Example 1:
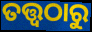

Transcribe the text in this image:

ତତ୍ତ୍ବଠାରୁ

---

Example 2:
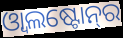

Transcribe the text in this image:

ଓ୍ୱାଲଷ୍ଟୋନ୍‌ର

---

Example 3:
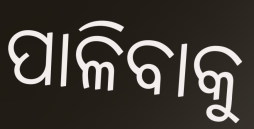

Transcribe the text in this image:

ପାଳିବାକୁ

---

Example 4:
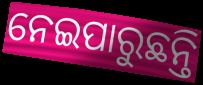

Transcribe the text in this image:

ନେଇପାରୁଛନ୍ତି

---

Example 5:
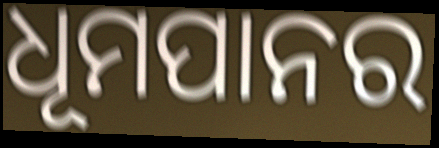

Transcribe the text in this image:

ଧୂମପାନର